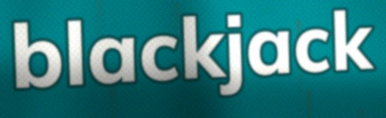
blackjack